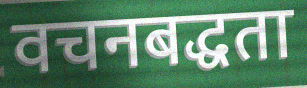
वचनबद्धता